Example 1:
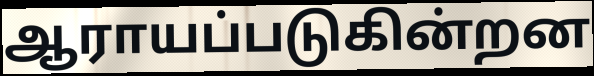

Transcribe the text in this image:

ஆராயப்படுகின்றன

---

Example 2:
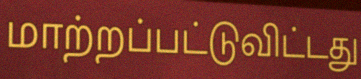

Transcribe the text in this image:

மாற்றப்பட்டுவிட்டது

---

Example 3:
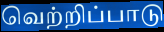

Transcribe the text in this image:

வெற்றிப்பாடு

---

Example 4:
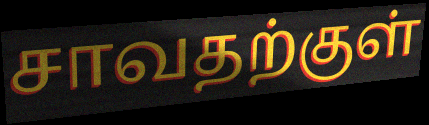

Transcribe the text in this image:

சாவதற்குள்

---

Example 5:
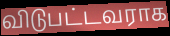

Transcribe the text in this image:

விடுபட்டவராக